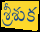
శ్రీశుక